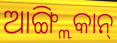
ଆଙ୍ଗ୍ଲିକାନ୍